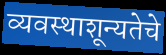
व्यवस्थाशून्यतेचे